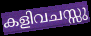
കളിവചസ്സു